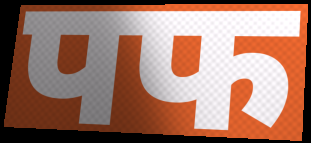
पफ